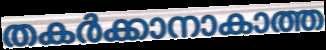
തകർക്കാനാകാത്ത